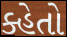
ક્હેતો